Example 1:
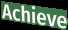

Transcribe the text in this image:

Achieve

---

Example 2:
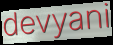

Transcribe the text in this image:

devyani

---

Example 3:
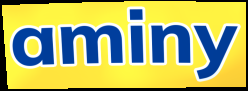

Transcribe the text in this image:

aminy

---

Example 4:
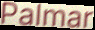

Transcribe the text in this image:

Palmar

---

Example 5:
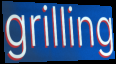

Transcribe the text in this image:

grilling